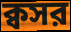
ক্বসর